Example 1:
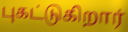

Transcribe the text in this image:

புகட்டுகிறார்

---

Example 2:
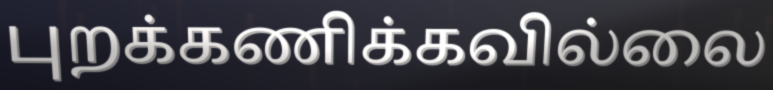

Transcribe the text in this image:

புறக்கணிக்கவில்லை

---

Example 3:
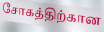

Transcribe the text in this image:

சோகத்திற்கான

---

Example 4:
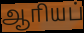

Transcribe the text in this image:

ஆரியப்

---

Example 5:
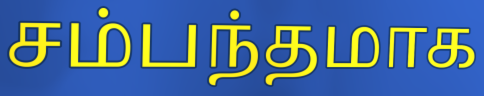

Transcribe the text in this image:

சம்பந்தமாக